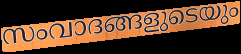
സംവാദങ്ങളുടെയും